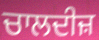
ਚਾਲਦੀਜ਼